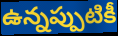
ఉన్నప్పుటికీ